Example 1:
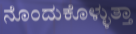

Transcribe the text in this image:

ನೊಂದುಕೊಳ್ಳುತ್ತಾ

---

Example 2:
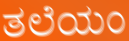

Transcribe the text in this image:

ತಲೆಯಂ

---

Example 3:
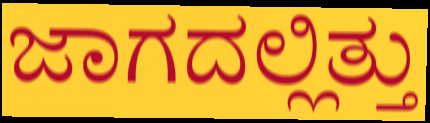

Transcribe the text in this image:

ಜಾಗದಲ್ಲಿತ್ತು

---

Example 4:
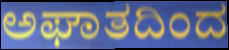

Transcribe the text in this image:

ಅಘಾತದಿಂದ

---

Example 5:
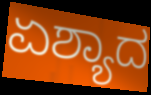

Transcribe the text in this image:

ಏಶ್ಯಾದ